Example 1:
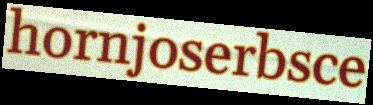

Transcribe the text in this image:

hornjoserbsce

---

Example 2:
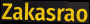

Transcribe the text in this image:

Zakasrao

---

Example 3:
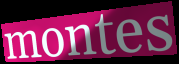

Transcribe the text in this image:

montes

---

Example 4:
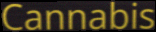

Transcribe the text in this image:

Cannabis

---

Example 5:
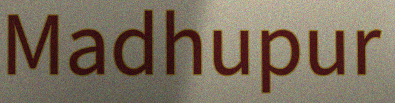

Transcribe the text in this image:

Madhupur